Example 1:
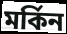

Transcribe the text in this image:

মর্কিন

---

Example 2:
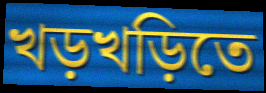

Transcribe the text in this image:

খড়খড়িতে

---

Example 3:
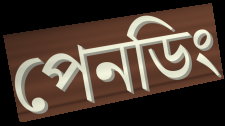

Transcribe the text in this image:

পেনডিং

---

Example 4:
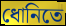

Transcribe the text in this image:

ধোনিতে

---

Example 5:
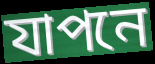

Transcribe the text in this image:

যাপনে